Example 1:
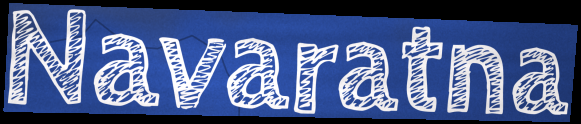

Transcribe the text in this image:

Navaratna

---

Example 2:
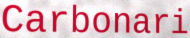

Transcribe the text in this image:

Carbonari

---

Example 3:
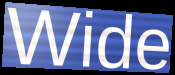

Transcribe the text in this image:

Wide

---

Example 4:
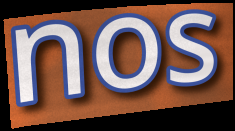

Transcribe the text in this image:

nos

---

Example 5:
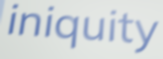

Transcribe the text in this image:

iniquity